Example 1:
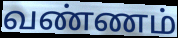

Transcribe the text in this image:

வண்ணம்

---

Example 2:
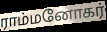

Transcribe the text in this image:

ராம்மனோகர்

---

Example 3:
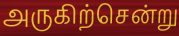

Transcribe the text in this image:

அருகிற்சென்று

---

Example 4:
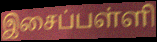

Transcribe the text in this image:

இசைப்பள்ளி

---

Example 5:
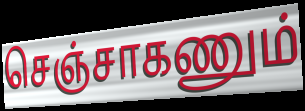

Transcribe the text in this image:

செஞ்சாகணும்